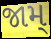
જામ્